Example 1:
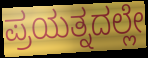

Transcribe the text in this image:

ಪ್ರಯತ್ನದಲ್ಲೇ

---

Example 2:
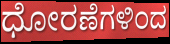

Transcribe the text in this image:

ಧೋರಣೆಗಳಿಂದ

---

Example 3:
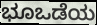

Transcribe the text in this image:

ಭೂಒಡೆಯ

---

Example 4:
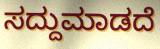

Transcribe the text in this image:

ಸದ್ದುಮಾಡದೆ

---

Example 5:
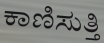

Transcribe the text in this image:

ಕಾಣಿಸುತ್ತಿ